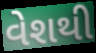
વેશથી